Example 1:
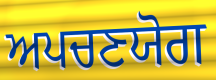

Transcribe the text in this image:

ਅਪਚਣਯੋਗ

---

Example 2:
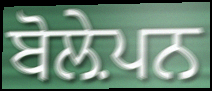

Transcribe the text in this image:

ਬੋਲ਼ੇਪਨ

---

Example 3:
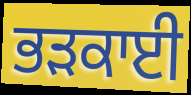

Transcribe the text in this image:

ਭੜਕਾਈ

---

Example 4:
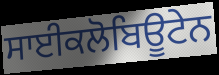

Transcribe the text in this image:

ਸਾਈਕਲੋਬਿਊਟੇਨ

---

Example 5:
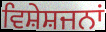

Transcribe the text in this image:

ਵਿਸ਼ੇਸ਼ਜਨਾਂ